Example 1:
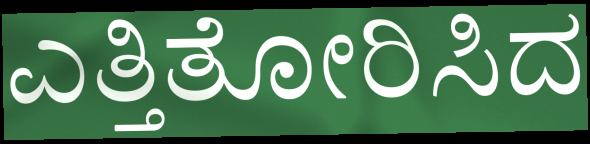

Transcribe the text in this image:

ಎತ್ತಿತೋರಿಸಿದ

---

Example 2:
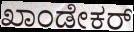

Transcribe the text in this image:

ಖಾಂಡೇಕರ್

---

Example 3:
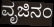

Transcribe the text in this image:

ವೃಜಿನಂ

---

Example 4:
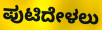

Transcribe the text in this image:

ಪುಟಿದೇಳಲು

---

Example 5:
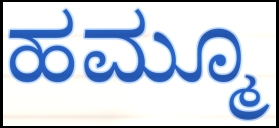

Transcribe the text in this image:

ಹಮ್ಮೂ